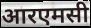
आरएमसी